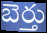
బెర్తు